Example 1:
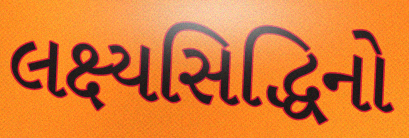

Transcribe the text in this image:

લક્ષ્યસિદ્ધિનો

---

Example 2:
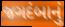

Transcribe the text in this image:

જગદંબાનું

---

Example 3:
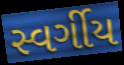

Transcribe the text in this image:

સ્વર્ગીય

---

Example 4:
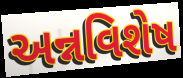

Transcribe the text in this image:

અન્નવિશેષ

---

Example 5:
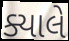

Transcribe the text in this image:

ક્યાલે